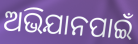
ଅଭିଯାନପାଇଁ